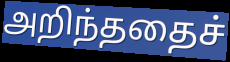
அறிந்ததைச்